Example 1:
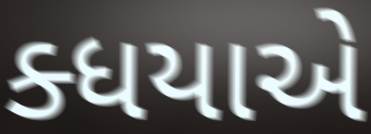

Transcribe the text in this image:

ક્ધયાએ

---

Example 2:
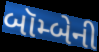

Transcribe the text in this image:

બૉમ્બેની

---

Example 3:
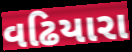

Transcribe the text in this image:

વઢિયારા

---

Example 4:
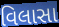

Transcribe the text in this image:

વિલાસા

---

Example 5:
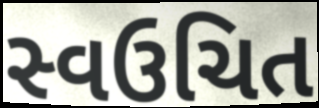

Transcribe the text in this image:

સ્વઉચિત